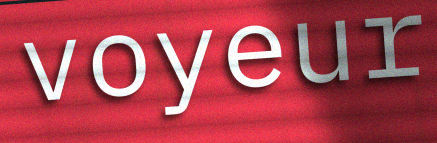
voyeur